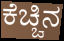
ಕೆಚ್ಚಿನ